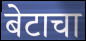
बेटाचा